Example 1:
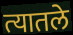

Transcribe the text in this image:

त्‍यातले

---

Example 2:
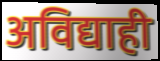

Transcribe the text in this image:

अविद्याही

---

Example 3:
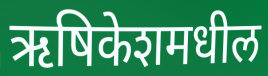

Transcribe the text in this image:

ऋषिकेशमधील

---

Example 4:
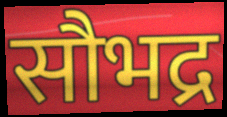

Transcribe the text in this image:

सौभद्र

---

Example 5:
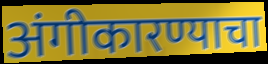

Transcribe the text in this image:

अंगीकारण्याचा